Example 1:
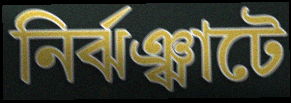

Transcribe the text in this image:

নির্ঝঞ্ঝাটে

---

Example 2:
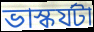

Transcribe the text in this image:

ভাস্কর্যটা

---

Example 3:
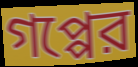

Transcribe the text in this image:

গপ্পের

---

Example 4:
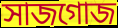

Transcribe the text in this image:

সাজগোজ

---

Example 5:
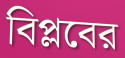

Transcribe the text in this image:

বিপ্লবের